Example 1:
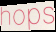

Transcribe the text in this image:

hops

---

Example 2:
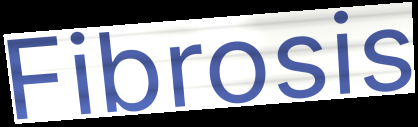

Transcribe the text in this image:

Fibrosis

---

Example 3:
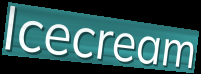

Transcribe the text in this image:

Icecream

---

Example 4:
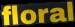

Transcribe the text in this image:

floral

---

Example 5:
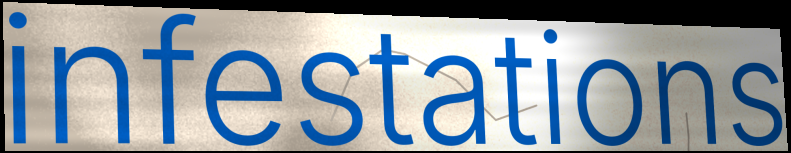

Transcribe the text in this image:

infestations